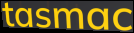
tasmac